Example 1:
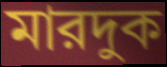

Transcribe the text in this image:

মারদুক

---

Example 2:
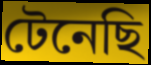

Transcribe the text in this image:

টেনেছি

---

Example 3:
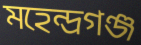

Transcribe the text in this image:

মহেন্দ্রগঞ্জ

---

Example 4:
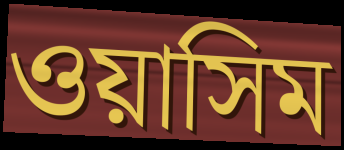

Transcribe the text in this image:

ওয়াসিম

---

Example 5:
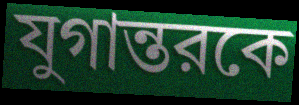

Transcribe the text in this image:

যুগান্তরকে